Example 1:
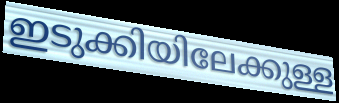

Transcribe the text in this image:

ഇടുക്കിയിലേക്കുള്ള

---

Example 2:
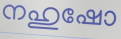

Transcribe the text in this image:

നഹുഷോ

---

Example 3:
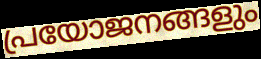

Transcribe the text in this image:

പ്രയോജനങ്ങളും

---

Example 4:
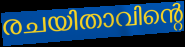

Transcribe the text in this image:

രചയിതാവിന്റെ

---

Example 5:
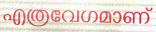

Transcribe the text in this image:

എത്രവേഗമാണ്